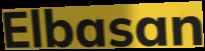
Elbasan